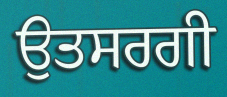
ਉਤਸਰਗੀ